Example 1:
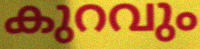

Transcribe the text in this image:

കുറവും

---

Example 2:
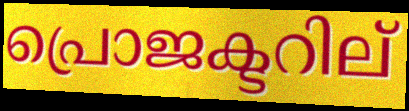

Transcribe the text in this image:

പ്രൊജക്ടറില്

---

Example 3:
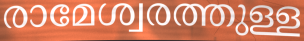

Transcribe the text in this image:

രാമേശ്വരത്തുള്ള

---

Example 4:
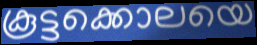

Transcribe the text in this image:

കൂട്ടക്കൊലയെ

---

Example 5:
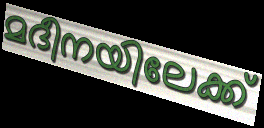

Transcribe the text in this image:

മദീനയിലേക്ക്